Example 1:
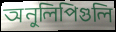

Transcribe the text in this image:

অনুলিপিগুলি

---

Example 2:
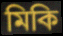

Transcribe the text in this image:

মিকি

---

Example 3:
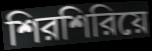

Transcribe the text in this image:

শিরশিরিয়ে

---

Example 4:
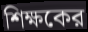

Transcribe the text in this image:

শিক্ষকের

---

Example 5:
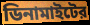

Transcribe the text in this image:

ডিনামাইটের